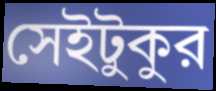
সেইটুকুর